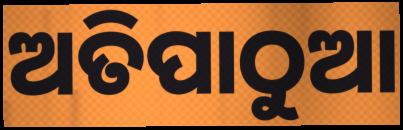
ଅତିପାଠୁଆ